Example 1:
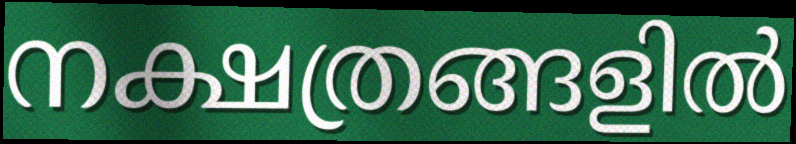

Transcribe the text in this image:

നക്ഷത്രങ്ങളിൽ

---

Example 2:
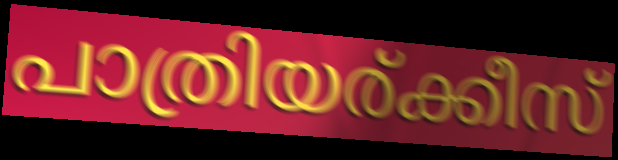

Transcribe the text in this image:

പാത്രിയര്ക്കീസ്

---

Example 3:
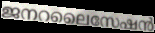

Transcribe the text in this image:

ജനറലൈസേഷൻ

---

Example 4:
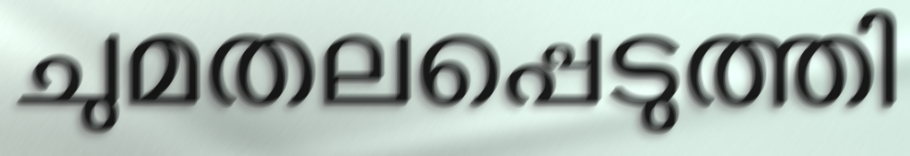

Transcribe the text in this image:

ചുമതലപ്പെടുത്തി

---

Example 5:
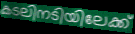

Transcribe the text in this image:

കടലിനടിയിലേക്ക്